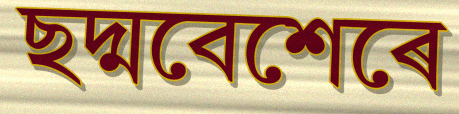
ছদ্মবেশেৰে